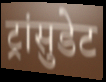
ट्रांसुडेट